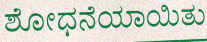
ಶೋಧನೆಯಾಯಿತು